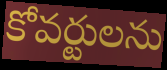
కోవర్టులను